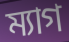
ম্যাগ